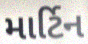
માર્ટિન